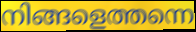
നിങ്ങളെത്തന്നെ